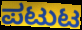
ಪಟುಟ